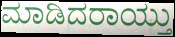
ಮಾಡಿದರಾಯ್ತು